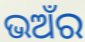
ଭଅଁର